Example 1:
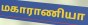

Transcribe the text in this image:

மகாராணியா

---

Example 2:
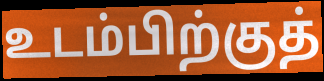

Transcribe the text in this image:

உடம்பிற்குத்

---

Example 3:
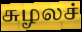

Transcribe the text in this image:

சுழலச்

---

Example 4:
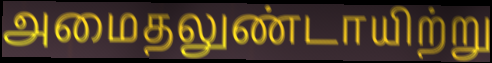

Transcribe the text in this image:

அமைதலுண்டாயிற்று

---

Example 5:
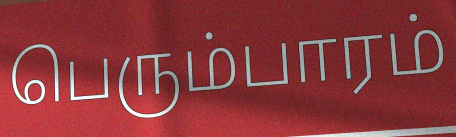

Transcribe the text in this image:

பெரும்பாரம்